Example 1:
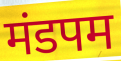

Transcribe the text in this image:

मंडपम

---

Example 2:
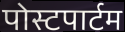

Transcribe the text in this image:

पोस्टपार्टम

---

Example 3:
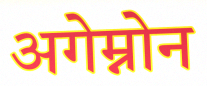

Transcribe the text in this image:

अगेम्नोन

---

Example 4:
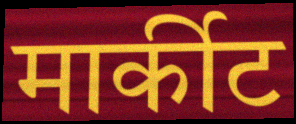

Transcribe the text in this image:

मार्कीट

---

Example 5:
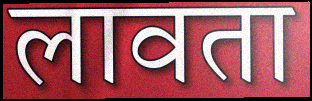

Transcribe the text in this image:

लावता